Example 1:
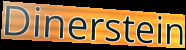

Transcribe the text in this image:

Dinerstein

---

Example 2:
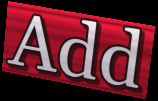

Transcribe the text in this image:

Add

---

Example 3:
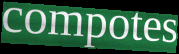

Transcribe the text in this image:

compotes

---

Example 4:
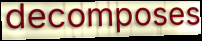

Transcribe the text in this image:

decomposes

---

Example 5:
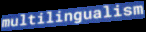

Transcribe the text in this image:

multilingualism